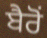
ਬੈਰੋਂ